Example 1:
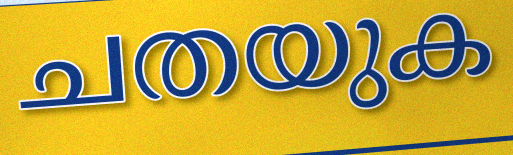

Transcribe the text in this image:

ചതയുക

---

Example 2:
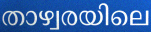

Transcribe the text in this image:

താഴ്വരയിലെ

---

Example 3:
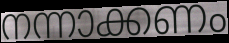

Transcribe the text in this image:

നന്നാക്കണം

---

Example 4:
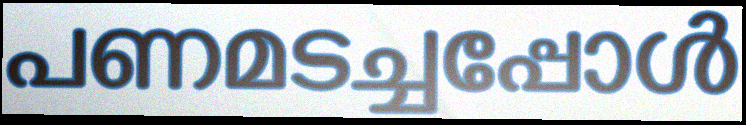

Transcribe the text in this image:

പണമടച്ചപ്പോൾ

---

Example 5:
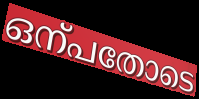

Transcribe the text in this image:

ഒന്പതോടെ